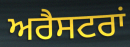
ਅਰੈਸਟਰਾਂ